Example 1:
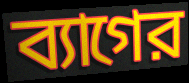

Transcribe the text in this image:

ব্যাগের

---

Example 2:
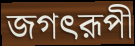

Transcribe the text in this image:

জগৎরূপী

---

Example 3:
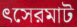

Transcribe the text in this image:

ৎসেরমাট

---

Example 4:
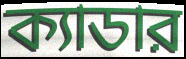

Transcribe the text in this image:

ক্যাডার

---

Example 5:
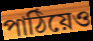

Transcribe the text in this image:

পাঠিয়েও